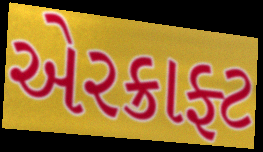
એરક્રાફ્ટ